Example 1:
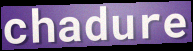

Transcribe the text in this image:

chadure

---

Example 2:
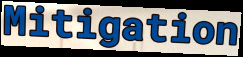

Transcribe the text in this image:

Mitigation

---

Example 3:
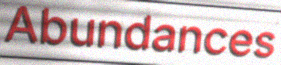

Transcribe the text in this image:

Abundances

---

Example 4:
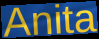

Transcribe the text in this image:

Anita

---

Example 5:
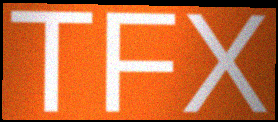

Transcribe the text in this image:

TFX